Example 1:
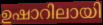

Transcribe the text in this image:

ഉഷാറിലായി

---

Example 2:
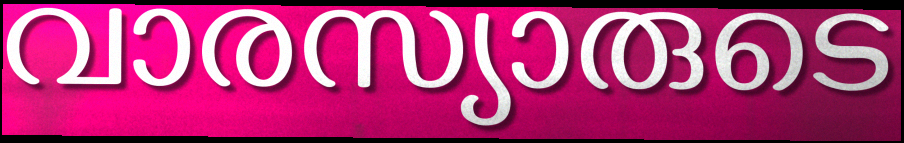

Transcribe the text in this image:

വാരസ്യാരുടെ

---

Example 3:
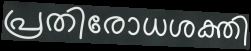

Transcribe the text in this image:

പ്രതിരോധശക്തി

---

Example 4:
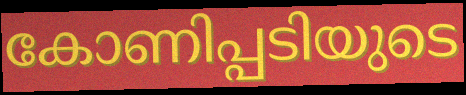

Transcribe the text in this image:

കോണിപ്പടിയുടെ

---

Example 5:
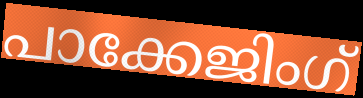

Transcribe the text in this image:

പാക്കേജിംഗ്